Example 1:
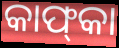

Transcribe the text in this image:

କାଫ୍‌କା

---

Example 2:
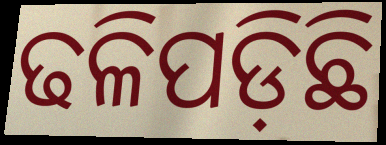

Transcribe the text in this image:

ଢଳିପଡ଼ିଛି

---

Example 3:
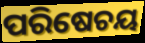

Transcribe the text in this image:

ପରିଷେଚୟ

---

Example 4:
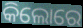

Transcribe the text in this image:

କିଲୋରେ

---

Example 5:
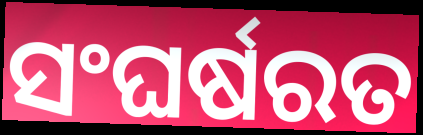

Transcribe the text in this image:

ସଂଘର୍ଷରତ